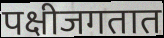
पक्षीजगतात